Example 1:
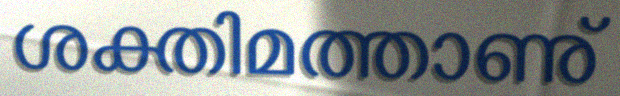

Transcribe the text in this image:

ശക്തിമത്താണു്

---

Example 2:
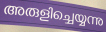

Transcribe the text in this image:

അരുളിച്ചെയ്യന്നു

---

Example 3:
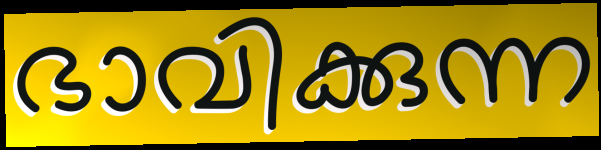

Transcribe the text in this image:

ഭാവിക്കുന്ന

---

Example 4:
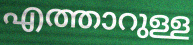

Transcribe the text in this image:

എത്താറുള്ള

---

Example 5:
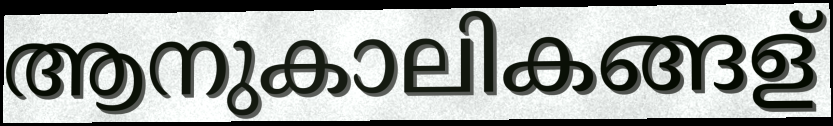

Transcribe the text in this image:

ആനുകാലികങ്ങള്